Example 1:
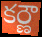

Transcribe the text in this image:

కర్ణౌ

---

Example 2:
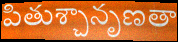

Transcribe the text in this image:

పితుశ్చానృణతా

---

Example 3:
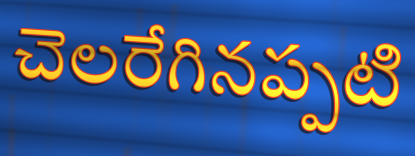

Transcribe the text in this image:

చెలరేగినప్పటి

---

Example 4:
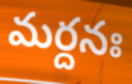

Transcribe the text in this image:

మర్దనః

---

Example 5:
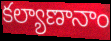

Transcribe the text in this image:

కల్యాణానాం